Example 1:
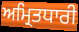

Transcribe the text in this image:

ਅਮ੍ਰਿਤਧਾਰੀ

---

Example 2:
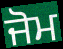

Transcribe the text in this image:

ਜੋਮ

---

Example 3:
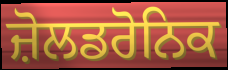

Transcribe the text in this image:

ਜ਼ੋਲਡਰੋਨਿਕ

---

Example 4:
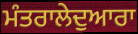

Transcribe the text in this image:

ਮੰਤਰਾਲੇਦੁਆਰਾ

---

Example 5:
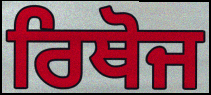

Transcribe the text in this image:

ਰਿਥੋਜ